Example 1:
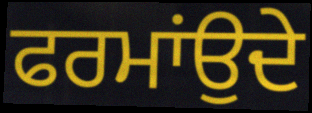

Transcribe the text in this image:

ਫਰਮਾਂਉਦੇ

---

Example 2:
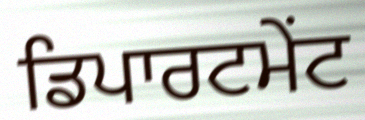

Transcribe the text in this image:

ਡਿਪਾਰਟਮੇਂਟ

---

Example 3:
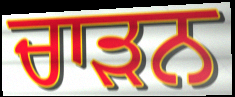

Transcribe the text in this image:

ਚਾੜਨ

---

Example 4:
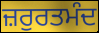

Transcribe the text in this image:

ਜ਼ਰੁਰਤਮੰਦ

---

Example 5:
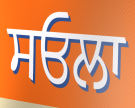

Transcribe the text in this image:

ਸਓਲਾ